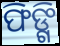
ଫିଙ୍ଗି